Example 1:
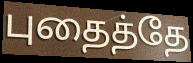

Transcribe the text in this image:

புதைத்தே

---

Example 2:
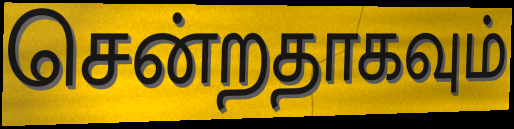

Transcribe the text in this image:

சென்றதாகவும்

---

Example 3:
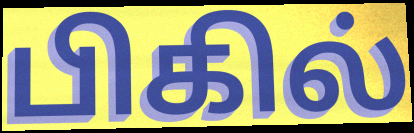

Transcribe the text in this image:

பிகில்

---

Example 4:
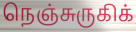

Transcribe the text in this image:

நெஞ்சுருகிக்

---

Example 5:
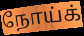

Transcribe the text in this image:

நோய்க்